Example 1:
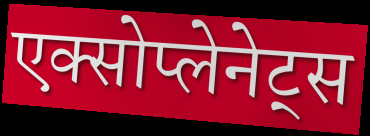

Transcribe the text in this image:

एक्सोप्लेनेट्स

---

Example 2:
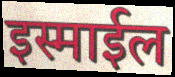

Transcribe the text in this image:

इस्माईल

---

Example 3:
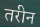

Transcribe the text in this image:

तरीन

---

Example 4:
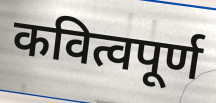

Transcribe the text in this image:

कवित्वपूर्ण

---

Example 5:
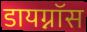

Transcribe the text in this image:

डायग्नॉस